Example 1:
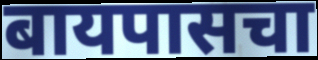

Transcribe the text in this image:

बायपासचा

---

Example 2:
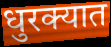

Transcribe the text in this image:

धुरक्यात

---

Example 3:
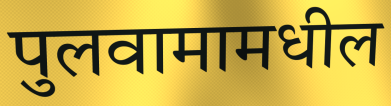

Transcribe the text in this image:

पुलवामामधील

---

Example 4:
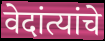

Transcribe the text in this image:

वेदांत्यांचे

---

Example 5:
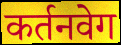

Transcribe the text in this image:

कर्तनवेग